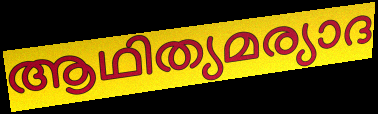
ആഥിത്യമര്യാദ